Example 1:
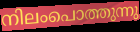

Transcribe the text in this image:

നിലംപൊത്തുന്നു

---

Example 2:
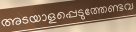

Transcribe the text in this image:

അടയാളപ്പെടുത്തേണ്ടവ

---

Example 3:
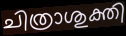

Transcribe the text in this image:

ചിത്രാശുക്തി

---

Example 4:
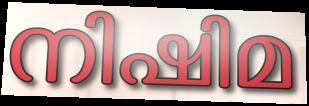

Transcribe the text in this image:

നിഷിമ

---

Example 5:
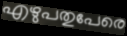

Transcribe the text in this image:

എഴുപതുപേരെ